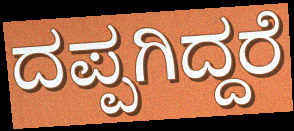
ದಪ್ಪಗಿದ್ದರೆ